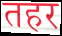
तहर